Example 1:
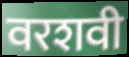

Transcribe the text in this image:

वरशवी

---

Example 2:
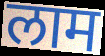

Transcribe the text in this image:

लाम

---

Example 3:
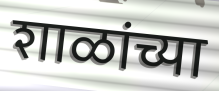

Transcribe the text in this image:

शाळांच्या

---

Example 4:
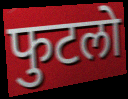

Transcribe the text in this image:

फुटलो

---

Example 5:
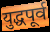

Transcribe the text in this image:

युद्धपूर्व